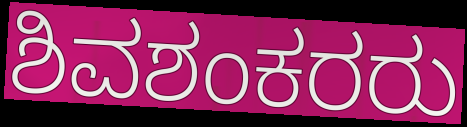
ಶಿವಶಂಕರರು